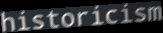
historicism